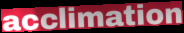
acclimation